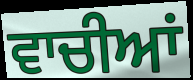
ਵਾਚੀਆਂ